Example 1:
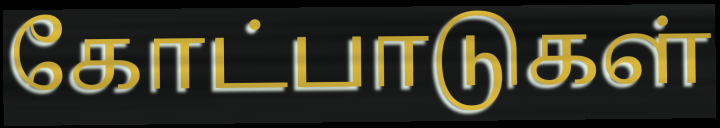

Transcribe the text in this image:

கோட்பாடுகள்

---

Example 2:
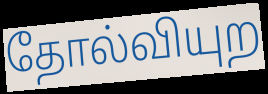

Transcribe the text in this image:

தோல்வியுற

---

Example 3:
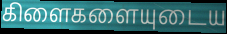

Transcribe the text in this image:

கிளைகளையுடைய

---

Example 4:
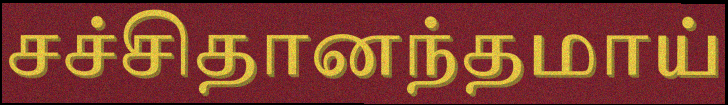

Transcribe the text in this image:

சச்சிதானந்தமாய்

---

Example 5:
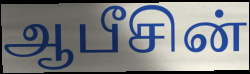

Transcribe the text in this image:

ஆபீசின்